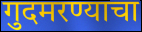
गुदमरण्याचा